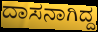
ದಾಸನಾಗಿದ್ದ